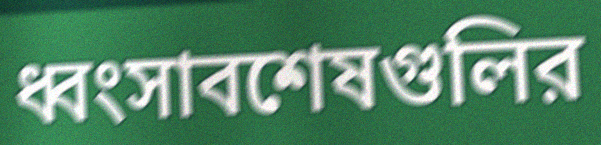
ধ্বংসাবশেষগুলির